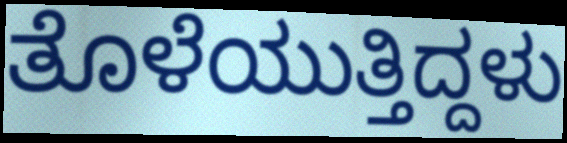
ತೊಳೆಯುತ್ತಿದ್ದಳು